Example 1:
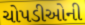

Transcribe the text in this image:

ચોપડીઓની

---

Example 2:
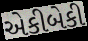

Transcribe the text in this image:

એકીબેકી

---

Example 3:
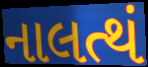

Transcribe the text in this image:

નાલત્થં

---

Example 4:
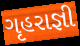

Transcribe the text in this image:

ગૃહરાજ્ઞી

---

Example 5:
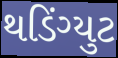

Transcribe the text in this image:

થડિંગ્યુટ